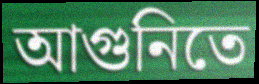
আগুনিতে